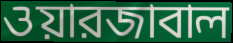
ওয়ারজাবাল